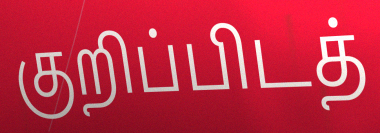
குறிப்பிடத்